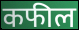
कफील